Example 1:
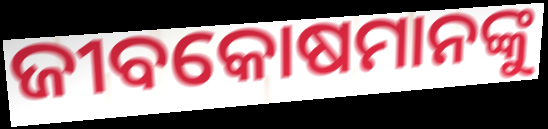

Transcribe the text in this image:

ଜୀବକୋଷମାନଙ୍କୁ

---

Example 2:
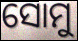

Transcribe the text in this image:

ସୋମୁ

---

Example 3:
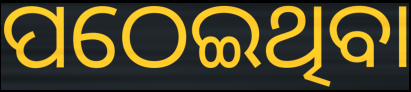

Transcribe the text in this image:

ପଠେଇଥିବା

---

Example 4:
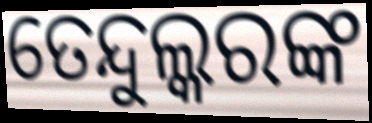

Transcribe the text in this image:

ତେନ୍ଦୁଲ୍କରଙ୍କ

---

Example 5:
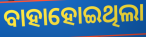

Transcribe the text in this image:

ବାହାହୋଇଥିଲା